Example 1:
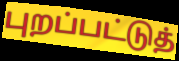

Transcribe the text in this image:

புறப்பட்டுத்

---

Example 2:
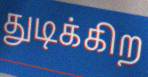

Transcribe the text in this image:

துடிக்கிற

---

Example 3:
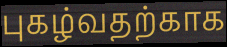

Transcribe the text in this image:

புகழ்வதற்காக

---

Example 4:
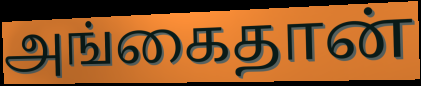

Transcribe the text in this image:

அங்கைதான்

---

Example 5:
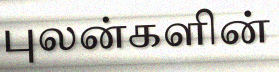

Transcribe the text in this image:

புலன்களின்